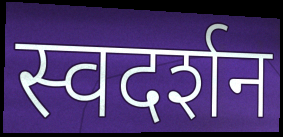
स्वदर्शन